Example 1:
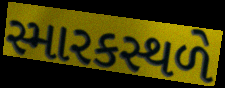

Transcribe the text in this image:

સ્મારકસ્થળે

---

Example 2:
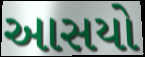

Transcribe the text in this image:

આસયો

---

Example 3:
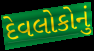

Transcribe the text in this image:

દેવલોકોનું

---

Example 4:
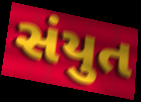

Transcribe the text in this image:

સંયુત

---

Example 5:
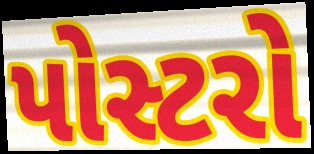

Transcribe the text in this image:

પોસ્ટરો